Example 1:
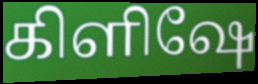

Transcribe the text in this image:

கிளிஷே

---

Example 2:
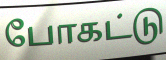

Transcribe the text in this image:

போகட்டு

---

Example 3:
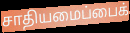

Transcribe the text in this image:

சாதியமைப்பைக்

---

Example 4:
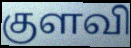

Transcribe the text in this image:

குளவி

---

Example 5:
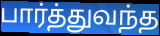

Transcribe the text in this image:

பார்த்துவந்த